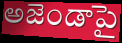
అజెండాపై